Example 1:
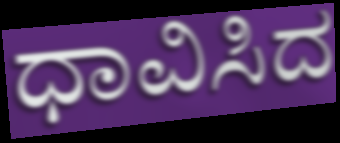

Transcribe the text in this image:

ಧಾವಿಸಿದ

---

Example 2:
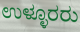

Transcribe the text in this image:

ಉಳ್ಳೂರರು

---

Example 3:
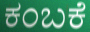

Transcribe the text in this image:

ಕಂಬಕೆ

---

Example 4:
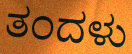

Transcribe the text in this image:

ತಂದಳು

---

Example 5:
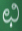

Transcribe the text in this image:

ಛಿ